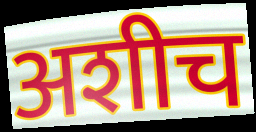
अशीच